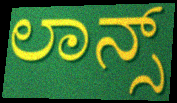
ಲಾನ್ಸ್